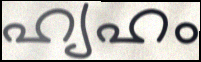
ഹ്യഹം